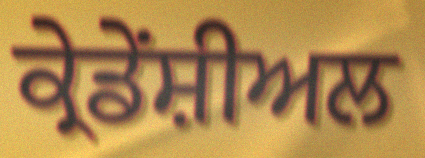
ਕ੍ਰੇਡੇਂਸ਼ੀਅਲ